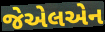
જેએલએન